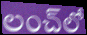
లంచ్‌లో